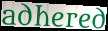
adhered